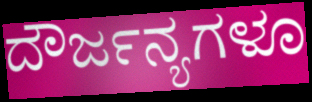
ದೌರ್ಜನ್ಯಗಳೂ